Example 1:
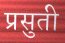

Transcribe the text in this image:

प्रसुती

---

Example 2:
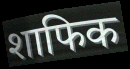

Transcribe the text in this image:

शाफिक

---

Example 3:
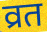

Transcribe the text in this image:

व्रत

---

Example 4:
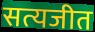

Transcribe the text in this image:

सत्यजीत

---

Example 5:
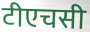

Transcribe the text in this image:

टीएचसी